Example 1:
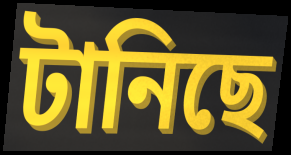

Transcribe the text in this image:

টানিছে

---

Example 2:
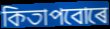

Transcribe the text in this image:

কিতাপবোৰে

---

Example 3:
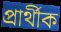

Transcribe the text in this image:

প্ৰাৰ্থীক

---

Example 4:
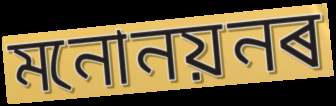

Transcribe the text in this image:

মনোনয়নৰ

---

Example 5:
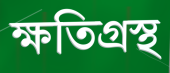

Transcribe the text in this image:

ক্ষতিগ্ৰস্থ